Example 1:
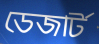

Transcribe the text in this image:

ডেজাৰ্ট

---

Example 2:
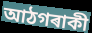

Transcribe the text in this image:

আঠগৰাকী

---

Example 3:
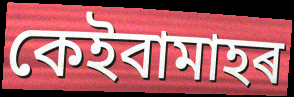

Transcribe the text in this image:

কেইবামাহৰ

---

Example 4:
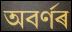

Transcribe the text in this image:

অবৰ্ণৰ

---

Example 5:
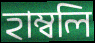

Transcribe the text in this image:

হাম্বলি